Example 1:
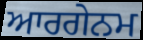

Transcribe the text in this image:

ਆਰਗੇਨਮ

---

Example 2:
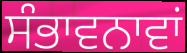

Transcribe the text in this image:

ਸੰਭਾਵਨਾਵਾਂ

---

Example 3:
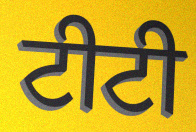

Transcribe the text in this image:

ਟੀਟੀ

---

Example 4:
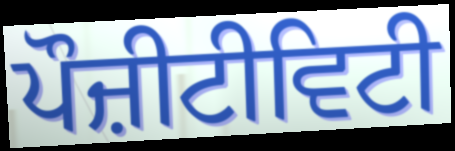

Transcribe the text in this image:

ਪੌਜ਼ੀਟੀਵਿਟੀ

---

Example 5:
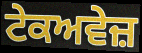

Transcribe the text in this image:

ਟੇਕਅਵੇਜ਼